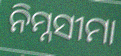
ନିମ୍ନସୀମା